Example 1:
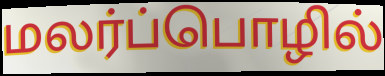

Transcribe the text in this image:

மலர்ப்பொழில்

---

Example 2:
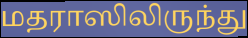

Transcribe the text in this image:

மதராஸிலிருந்து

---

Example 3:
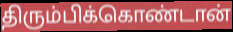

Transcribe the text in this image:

திரும்பிக்கொண்டான்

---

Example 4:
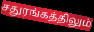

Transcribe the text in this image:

சதுரங்கத்திலும்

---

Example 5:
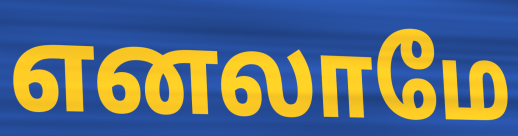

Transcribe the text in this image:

எனலாமே